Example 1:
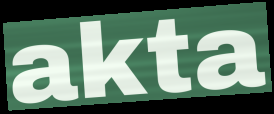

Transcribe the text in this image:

akta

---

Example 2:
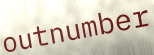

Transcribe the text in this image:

outnumber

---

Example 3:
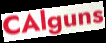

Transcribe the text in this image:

CAlguns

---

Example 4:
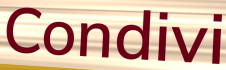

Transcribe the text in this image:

Condivi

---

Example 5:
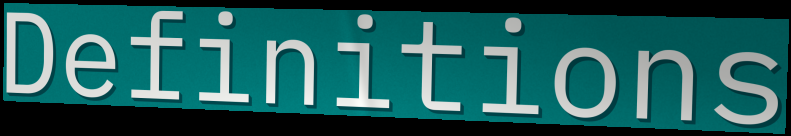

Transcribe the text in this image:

Definitions